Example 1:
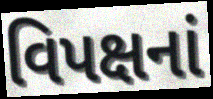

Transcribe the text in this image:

વિપક્ષનાં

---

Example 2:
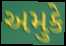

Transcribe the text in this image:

અમુકે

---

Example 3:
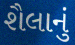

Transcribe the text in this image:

શૈલાનું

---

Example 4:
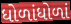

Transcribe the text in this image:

ધોળાંધોળાં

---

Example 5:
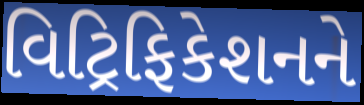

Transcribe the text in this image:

વિટ્રિફિકેશનને